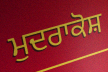
ਮੁਦਰਾਕੋਸ਼